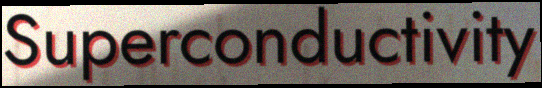
Superconductivity